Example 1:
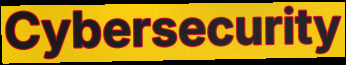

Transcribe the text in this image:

Cybersecurity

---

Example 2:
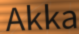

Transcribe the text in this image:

Akka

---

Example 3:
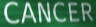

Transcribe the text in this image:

CANCER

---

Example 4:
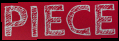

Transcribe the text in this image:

PIECE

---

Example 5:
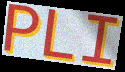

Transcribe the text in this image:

PLI